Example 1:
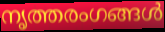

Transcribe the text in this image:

നൃത്തരംഗങ്ങൾ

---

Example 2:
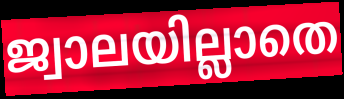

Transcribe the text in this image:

ജ്വാലയില്ലാതെ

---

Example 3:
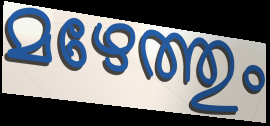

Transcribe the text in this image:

മഴേത്തും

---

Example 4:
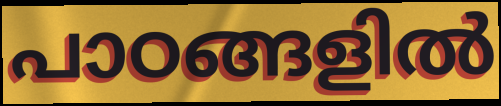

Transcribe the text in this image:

പാഠങ്ങളിൽ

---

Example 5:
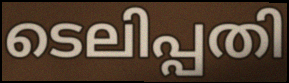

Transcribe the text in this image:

ടെലിപ്പതി